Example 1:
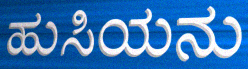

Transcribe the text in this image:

ಹುಸಿಯನು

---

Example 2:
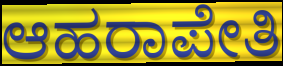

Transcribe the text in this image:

ಆಹರಾಪೇತಿ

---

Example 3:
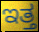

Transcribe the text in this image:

ಇತ್ತ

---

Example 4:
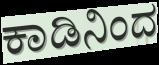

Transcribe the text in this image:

ಕಾಡಿನಿಂದ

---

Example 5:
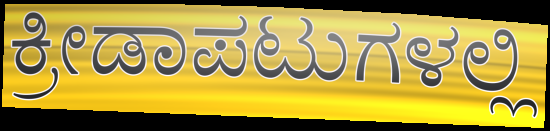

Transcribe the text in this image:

ಕ್ರೀಡಾಪಟುಗಳಲ್ಲಿ